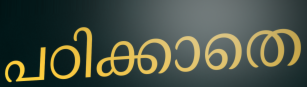
പഠിക്കാതെ